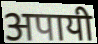
अपायी